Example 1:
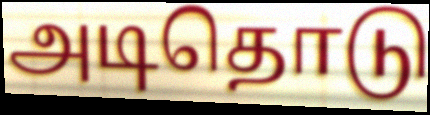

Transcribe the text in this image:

அடிதொடு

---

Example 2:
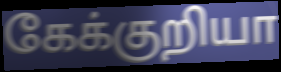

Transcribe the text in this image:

கேக்குறியா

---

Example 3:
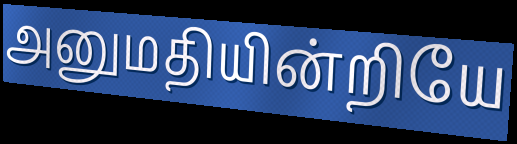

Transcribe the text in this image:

அனுமதியின்றியே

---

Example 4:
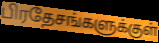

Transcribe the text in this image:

பிரதேசங்களுக்குள்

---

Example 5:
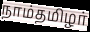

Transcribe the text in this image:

நாம்தமிழர்